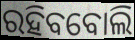
ରହିବବୋଲି